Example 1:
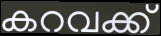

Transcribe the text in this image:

കറവക്ക്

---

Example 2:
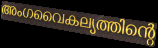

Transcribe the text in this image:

അംഗവൈകല്യത്തിന്റെ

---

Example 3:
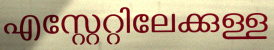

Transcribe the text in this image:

എസ്റ്റേറ്റിലേക്കുള്ള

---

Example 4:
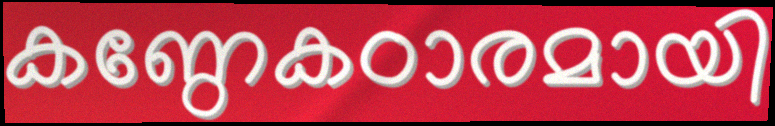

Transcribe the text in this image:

കണ്ഠേകഠാരമായി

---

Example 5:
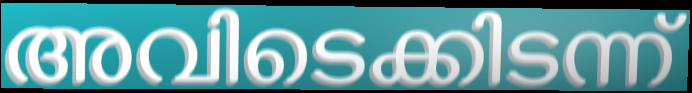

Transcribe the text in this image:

അവിടെക്കിടന്ന്